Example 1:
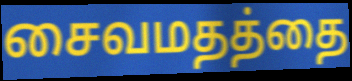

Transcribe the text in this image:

சைவமதத்தை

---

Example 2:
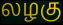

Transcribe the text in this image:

லழகு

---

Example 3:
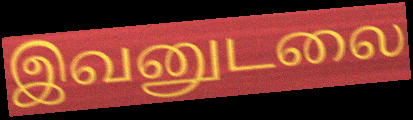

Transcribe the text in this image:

இவனுடலை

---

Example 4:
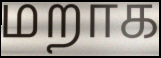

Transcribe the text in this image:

மறாக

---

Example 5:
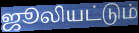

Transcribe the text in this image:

ஜூலியட்டும்